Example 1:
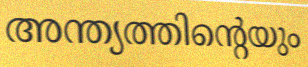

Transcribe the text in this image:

അന്ത്യത്തിന്റെയും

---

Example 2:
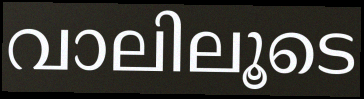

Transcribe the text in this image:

വാലിലൂടെ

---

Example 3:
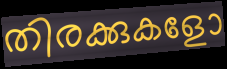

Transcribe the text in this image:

തിരക്കുകളോ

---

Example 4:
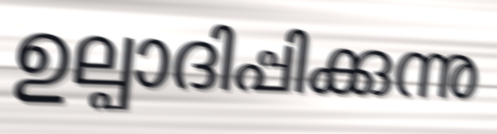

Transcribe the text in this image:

ഉല്പാദിപ്പിക്കുന്നു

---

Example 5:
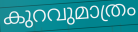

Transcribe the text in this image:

കുറവുമാത്രം